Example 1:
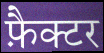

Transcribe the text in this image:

फ़ैक्टर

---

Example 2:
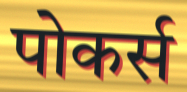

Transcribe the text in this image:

पोकर्स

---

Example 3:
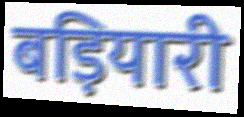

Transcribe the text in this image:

बड़ियारी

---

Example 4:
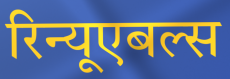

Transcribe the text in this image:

रिन्यूएबल्स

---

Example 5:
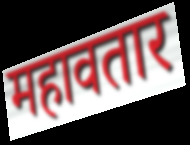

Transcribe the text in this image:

महावतार